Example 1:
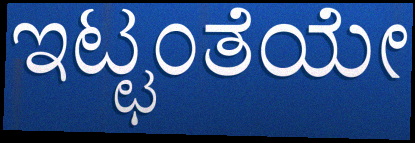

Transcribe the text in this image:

ಇಟ್ಟಂತೆಯೇ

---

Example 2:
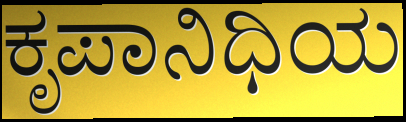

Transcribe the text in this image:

ಕೃಪಾನಿಧಿಯ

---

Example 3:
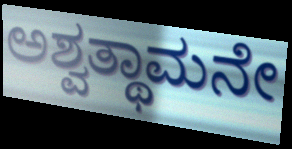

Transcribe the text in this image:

ಅಶ್ವತ್ಥಾಮನೇ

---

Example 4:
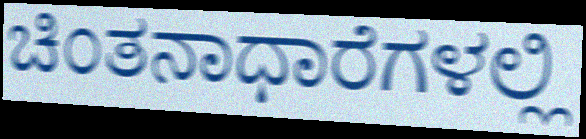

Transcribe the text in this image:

ಚಿಂತನಾಧಾರೆಗಳಲ್ಲಿ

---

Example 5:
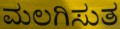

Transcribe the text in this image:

ಮಲಗಿಸುತ